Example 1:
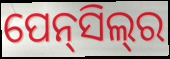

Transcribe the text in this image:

ପେନ୍‌ସିଲ୍‌ର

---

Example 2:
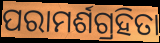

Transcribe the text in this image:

ପରାମର୍ଶଗ୍ରହିତା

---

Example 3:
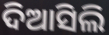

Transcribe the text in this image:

ଦିଆସିଲି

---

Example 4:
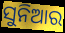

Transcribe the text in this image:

ସୁନିଆର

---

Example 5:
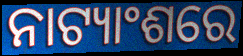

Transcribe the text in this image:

ନାଟ୍ୟାଂଶରେ